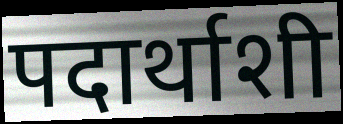
पदार्थाशी